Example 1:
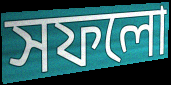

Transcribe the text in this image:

সফলো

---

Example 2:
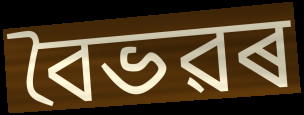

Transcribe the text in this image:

বৈভৱৰ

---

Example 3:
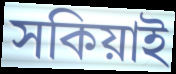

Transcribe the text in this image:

সকিয়াই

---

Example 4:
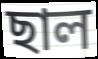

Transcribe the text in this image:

ছাল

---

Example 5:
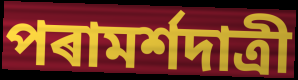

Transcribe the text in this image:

পৰামৰ্শদাত্ৰী